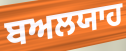
ਬਅਲਯਾਹ